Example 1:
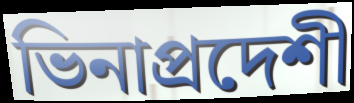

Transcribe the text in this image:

ভিনাপ্রদেশী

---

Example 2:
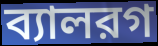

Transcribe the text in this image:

ব্যালরগ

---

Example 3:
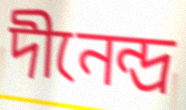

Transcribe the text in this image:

দীনেন্দ্র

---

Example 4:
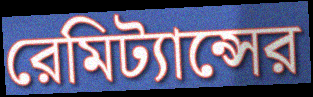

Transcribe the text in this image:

রেমিট্যান্সের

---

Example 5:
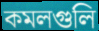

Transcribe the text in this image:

কমলগুলি